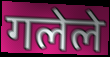
गलेले